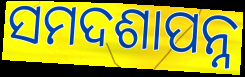
ସମଦଶାପନ୍ନ